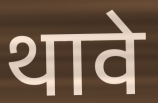
थावे